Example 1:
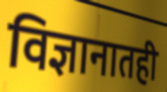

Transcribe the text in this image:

विज्ञानातही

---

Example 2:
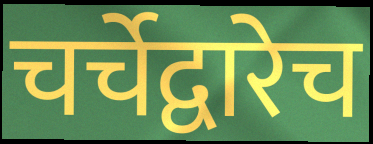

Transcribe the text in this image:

चर्चेद्वारेच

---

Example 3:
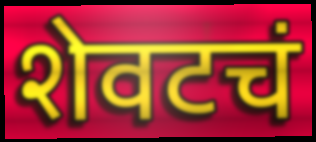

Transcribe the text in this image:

शेवटचं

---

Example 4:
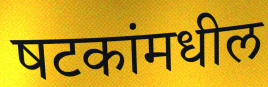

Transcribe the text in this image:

षटकांमधील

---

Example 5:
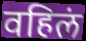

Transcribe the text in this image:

वहिलं